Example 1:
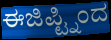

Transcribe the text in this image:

ಈಜಿಪ್ಟ್ನಿಂದ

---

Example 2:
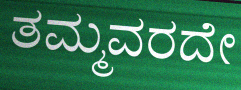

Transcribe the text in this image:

ತಮ್ಮವರದೇ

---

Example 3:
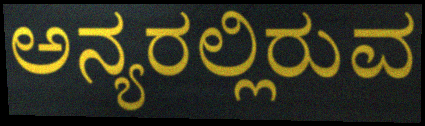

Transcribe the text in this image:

ಅನ್ಯರಲ್ಲಿರುವ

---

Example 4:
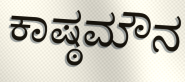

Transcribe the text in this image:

ಕಾಷ್ಠಮೌನ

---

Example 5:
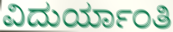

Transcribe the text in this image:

ವಿದುರ್ಯಾಂತಿ